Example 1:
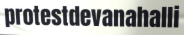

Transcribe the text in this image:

protestdevanahalli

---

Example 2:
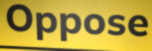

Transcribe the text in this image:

Oppose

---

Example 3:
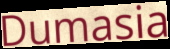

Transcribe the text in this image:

Dumasia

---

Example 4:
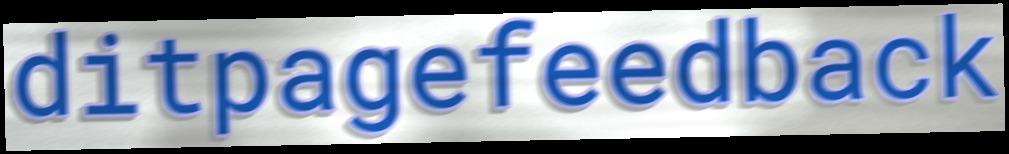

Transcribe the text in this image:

ditpagefeedback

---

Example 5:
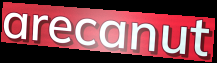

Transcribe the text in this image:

arecanut